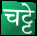
चट्टे